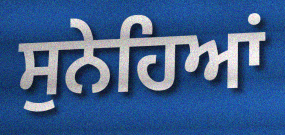
ਸੁਨੇਹਿਆਂ